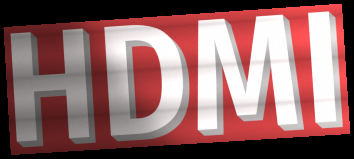
HDMI